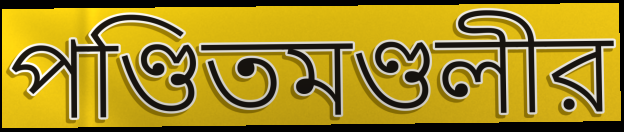
পণ্ডিতমণ্ডলীর